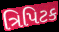
ત્રિપિટક